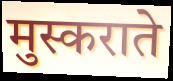
मुस्कराते